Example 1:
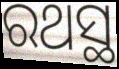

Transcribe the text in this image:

ରଥସ୍ଥ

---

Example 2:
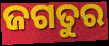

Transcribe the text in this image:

ଜଗତୁର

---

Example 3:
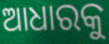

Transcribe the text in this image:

ଆଧାରକୁ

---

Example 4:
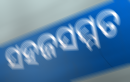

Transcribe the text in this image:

ସହଜସମ୍ମତ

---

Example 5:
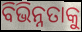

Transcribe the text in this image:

ବିଭିନ୍ନତାକୁ